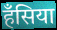
हँसिया